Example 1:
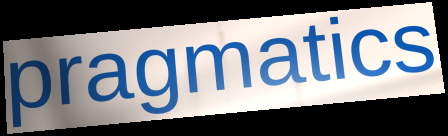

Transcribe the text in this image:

pragmatics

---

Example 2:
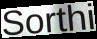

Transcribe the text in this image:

Sorthi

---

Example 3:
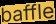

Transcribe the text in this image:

baffle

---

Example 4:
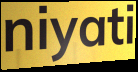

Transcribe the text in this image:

niyati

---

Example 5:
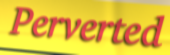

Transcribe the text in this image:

Perverted